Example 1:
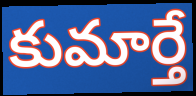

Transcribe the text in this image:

కుమార్తే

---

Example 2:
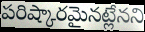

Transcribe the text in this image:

పరిష్కారమైనట్లేనని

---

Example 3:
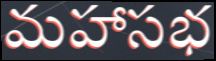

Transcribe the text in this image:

మహాసభ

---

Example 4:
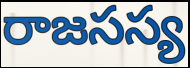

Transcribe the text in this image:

రాజసస్య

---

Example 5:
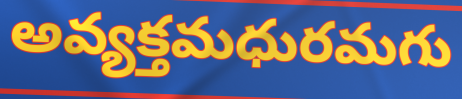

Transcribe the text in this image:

అవ్యక్తమధురమగు